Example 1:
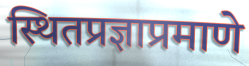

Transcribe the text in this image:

स्थितप्रज्ञाप्रमाणे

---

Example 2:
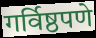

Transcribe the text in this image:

गर्विष्ठपणे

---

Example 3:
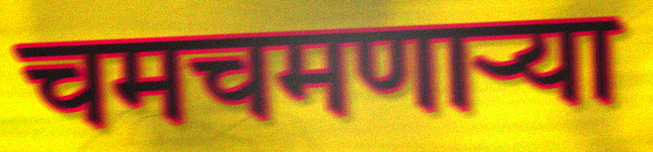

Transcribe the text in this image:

चमचमणार्‍या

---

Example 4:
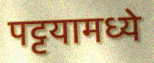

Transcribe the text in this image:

पट्टयामध्ये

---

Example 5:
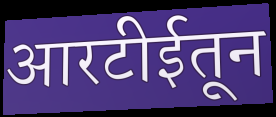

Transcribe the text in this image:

आरटीईतून